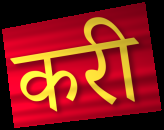
करी